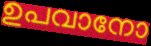
ഉപവാനോ